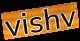
vishv